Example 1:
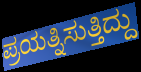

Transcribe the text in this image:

ಪ್ರಯತ್ನಿಸುತ್ತಿದ್ದು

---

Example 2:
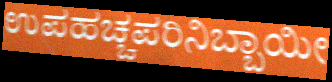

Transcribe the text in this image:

ಉಪಹಚ್ಚಪರಿನಿಬ್ಬಾಯೀ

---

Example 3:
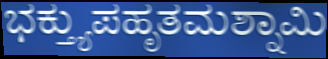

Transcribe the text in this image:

ಭಕ್ತ್ಯುಪಹೃತಮಶ್ನಾಮಿ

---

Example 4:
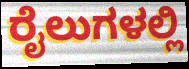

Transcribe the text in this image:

ರೈಲುಗಳಲ್ಲಿ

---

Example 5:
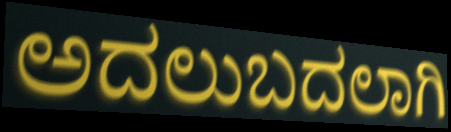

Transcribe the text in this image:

ಅದಲುಬದಲಾಗಿ